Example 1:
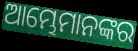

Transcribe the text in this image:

ଆମ୍ଭେମାନଙ୍କର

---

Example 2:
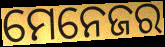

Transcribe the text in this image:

ମେନେଜର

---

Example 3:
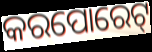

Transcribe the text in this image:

କରପୋରେଟ୍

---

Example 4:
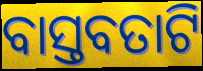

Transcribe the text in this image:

ବାସ୍ତବତାଟି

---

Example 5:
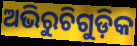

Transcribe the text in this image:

ଅଭିରୁଚିଗୁଡ଼ିକ